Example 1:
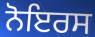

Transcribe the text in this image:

ਨੋਇਰਸ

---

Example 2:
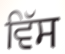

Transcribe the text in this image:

ਵਿੱਸ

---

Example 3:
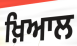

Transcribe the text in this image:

ਖ਼ਿਆਲ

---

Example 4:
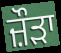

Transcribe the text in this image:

ਜ਼ੌੜਾ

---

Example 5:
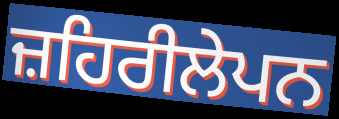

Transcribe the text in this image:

ਜ਼ਹਿਰੀਲੇਪਨ